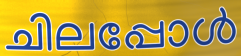
ചിലപ്പോൾ